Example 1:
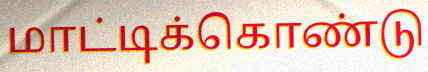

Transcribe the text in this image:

மாட்டிக்கொண்டு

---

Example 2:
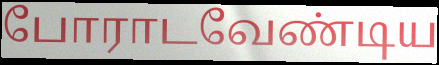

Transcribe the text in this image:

போராடவேண்டிய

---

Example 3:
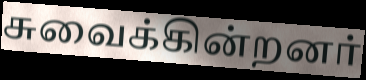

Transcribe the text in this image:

சுவைக்கின்றனர்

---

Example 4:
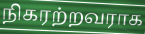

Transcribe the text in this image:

நிகரற்றவராக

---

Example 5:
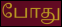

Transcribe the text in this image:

போது